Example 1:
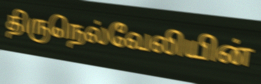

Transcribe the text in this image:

திருநெல்வேலியின்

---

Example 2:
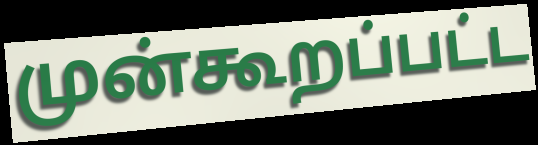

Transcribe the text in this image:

முன்கூறப்பட்ட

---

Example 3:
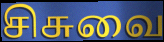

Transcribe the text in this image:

சிசுவை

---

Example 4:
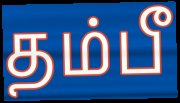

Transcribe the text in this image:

தம்பீ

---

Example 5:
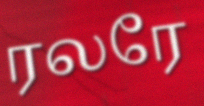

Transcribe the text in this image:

ரலரே